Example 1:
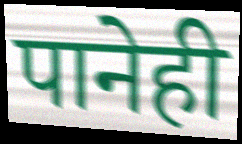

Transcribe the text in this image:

पानेही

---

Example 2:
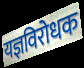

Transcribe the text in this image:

यज्ञविरोधक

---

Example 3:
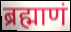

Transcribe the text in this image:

ब्रह्माणं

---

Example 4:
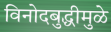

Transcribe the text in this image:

विनोदबुद्धीमुळे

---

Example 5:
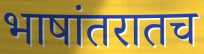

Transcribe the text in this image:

भाषांतरातच